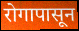
रोगापासून